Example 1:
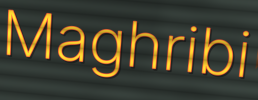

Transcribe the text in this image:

Maghribi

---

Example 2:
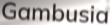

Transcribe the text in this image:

Gambusia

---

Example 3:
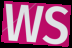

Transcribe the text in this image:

WS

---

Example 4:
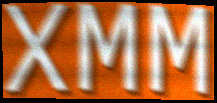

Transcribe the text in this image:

XMM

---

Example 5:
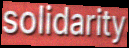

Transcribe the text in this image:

solidarity